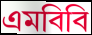
এমবিবি